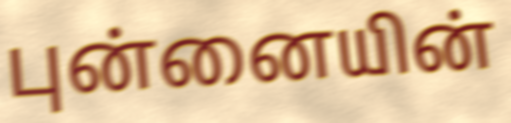
புன்னையின்